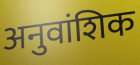
अनुवांशिक